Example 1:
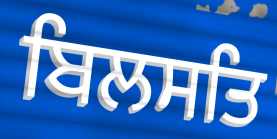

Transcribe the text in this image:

ਬਿਲਸਤਿ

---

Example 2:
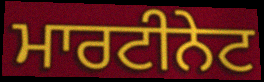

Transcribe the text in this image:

ਮਾਰਟੀਨੇਟ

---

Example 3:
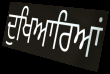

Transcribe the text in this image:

ਦੁਖਿਆਰਿਆਂ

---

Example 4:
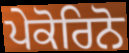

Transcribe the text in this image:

ਪੇਕੋਰਿਨੋ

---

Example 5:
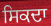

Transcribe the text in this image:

ਸਿਕਦਾ